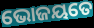
ଭୋଜୟତେ